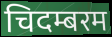
चिदम्बरम